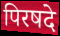
पिरषदे